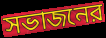
সভাজনের